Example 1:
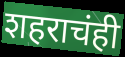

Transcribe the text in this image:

शहराचंही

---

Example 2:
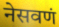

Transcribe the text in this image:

नेसवणं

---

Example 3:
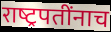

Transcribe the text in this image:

राष्ट्रपतींनाच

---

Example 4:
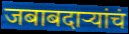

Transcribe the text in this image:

जबाबदार्‍यांचं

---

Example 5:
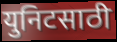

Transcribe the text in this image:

युनिटसाठी